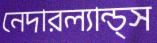
নেদারল্যান্ড্‌স